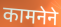
कामनेने